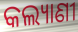
କଲ୍ୟାଣୀ